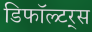
डिफॉल्टर्स